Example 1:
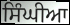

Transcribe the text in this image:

ਸਿੰਘੀਆ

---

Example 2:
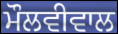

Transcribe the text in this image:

ਮੌਲਵੀਵਾਲ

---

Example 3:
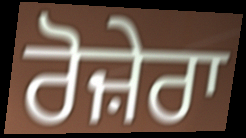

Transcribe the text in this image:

ਰੋਜ਼ੇਰਾ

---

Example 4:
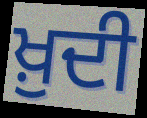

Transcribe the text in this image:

ਖ਼ੁਦੀ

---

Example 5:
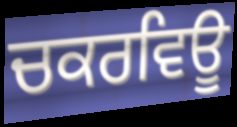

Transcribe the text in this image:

ਚਕਰਵਿਊ